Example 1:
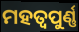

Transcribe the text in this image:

ମହତ୍ୱପୁର୍ଣ୍ଣ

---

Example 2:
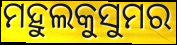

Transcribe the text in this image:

ମହୁଲକୁସୁମର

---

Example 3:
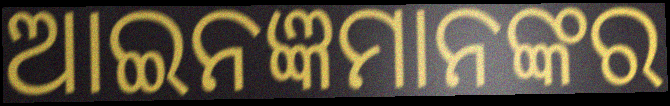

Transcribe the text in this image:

ଆଇନଜ୍ଞମାନଙ୍କର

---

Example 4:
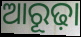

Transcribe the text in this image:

ଆରୂଢ଼ା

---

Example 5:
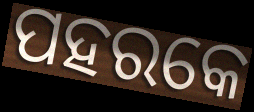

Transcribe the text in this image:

ପହରକେ